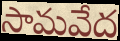
సామవేద